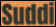
Suddi